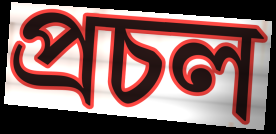
প্রচল